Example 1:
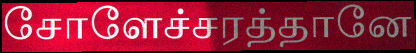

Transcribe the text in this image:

சோளேச்சரத்தானே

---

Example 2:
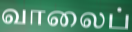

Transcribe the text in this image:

வாலைப்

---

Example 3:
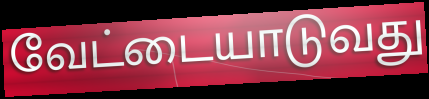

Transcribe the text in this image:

வேட்டையாடுவது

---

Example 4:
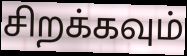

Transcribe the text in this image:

சிறக்கவும்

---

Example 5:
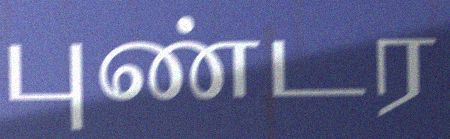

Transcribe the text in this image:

புண்டர